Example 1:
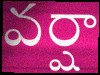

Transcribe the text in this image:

వర్షా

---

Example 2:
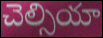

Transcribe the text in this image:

చెల్సియా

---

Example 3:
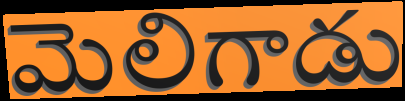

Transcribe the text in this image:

మెలిగాడు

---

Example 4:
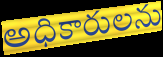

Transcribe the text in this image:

అధికారులను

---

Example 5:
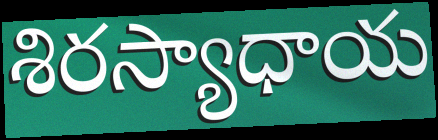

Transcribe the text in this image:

శిరస్యాధాయ